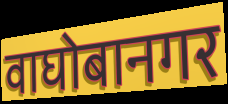
वाघोबानगर